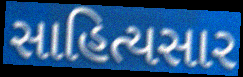
સાહિત્યસાર